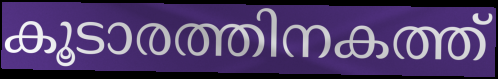
കൂടാരത്തിനകത്ത്